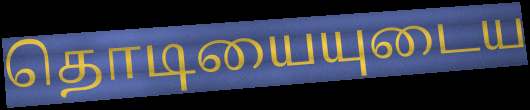
தொடியையுடைய